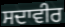
ਸਦਾਵੀਰ